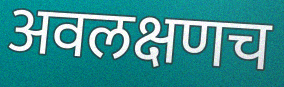
अवलक्षणच